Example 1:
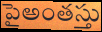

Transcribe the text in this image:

పైఅంతస్తు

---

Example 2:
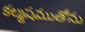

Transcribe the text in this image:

కల్మషముతోను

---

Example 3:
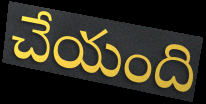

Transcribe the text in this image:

చేయంది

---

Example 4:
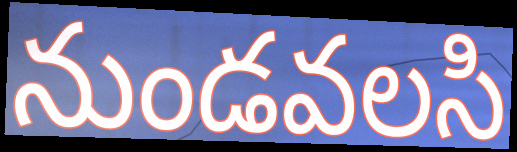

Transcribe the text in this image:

నుండవలసి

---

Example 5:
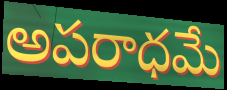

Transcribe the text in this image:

అపరాధమే